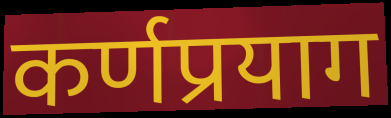
कर्णप्रयाग